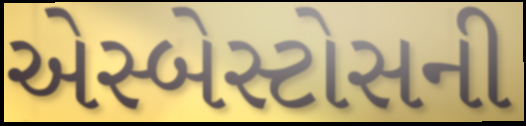
એસ્બેસ્ટોસની